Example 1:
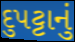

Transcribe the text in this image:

દુપટ્ટાનું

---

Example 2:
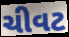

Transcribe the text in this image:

ચીવટ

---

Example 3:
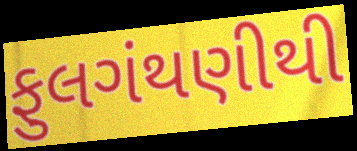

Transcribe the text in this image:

ફુલગંથણીથી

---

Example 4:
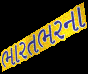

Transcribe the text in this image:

ભારતભરના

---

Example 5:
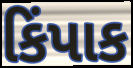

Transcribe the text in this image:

કિંપાક